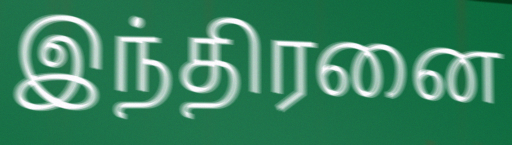
இந்திரனை